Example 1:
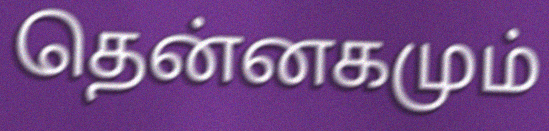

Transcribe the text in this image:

தென்னகமும்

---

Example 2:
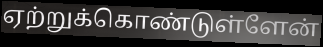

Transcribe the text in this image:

ஏற்றுக்கொண்டுள்ளேன்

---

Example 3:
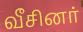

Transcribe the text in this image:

வீசினர்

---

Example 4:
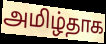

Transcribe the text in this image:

அமிழ்தாக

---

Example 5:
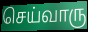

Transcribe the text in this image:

செய்வாரு